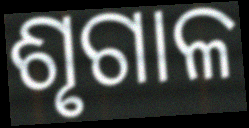
ଶୃଗାଳ